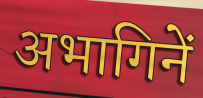
अभागिनें